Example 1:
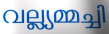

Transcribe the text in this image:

വല്ല്യമ്മച്ചി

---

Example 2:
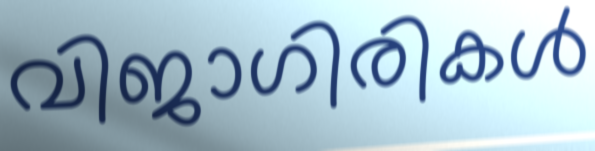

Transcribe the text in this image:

വിജാഗിരികൾ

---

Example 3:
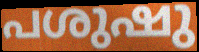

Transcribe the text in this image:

പശുഷു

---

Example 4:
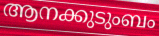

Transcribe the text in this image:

ആനക്കുടുംബം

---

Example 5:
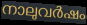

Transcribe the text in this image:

നാലുവർഷം